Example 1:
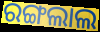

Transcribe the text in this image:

ରଙ୍ଗଲାଲ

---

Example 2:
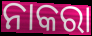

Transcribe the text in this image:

ନାକରା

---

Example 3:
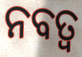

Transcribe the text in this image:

ନବତ୍ଵ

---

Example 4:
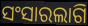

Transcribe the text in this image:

ସଂସାରଲାଗି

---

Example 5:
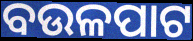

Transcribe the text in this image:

ବଉଳପାଟ